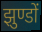
झुण्डों